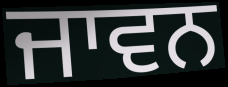
ਜਾਵਨ